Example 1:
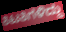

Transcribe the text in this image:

ಕಿಟಕಿಗಳಿದ್ದು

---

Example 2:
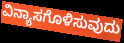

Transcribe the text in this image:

ವಿನ್ಯಾಸಗೊಳಿಸುವುದು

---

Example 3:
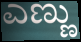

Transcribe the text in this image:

ಎಣ್ಣು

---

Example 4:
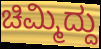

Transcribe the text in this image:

ಚಿಮ್ಮಿದ್ದು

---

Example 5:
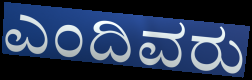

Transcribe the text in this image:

ಎಂದಿವರು